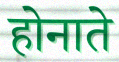
होनाते